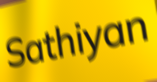
Sathiyan